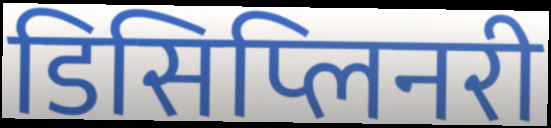
डिसिप्लिनरी